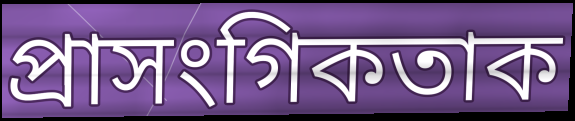
প্ৰাসংগিকতাক